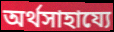
অর্থসাহায্যে